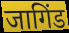
जागिंड